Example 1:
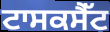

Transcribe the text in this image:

ਟਾਸਕਸੈੱਟ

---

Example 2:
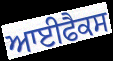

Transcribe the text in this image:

ਆਈਫੈਕਸ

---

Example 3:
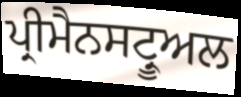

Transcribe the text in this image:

ਪ੍ਰੀਮੈਨਸਟ੍ਰੂਅਲ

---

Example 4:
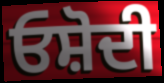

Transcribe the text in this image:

ਓਸ਼ੋਦੀ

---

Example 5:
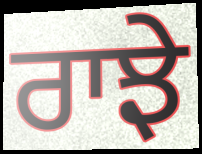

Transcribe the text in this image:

ਰਾਝੇ